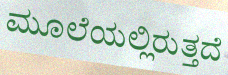
ಮೂಲೆಯಲ್ಲಿರುತ್ತದೆ